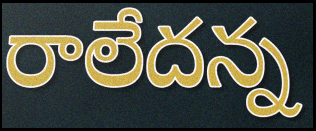
రాలేదన్న